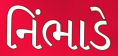
નિંભાડે